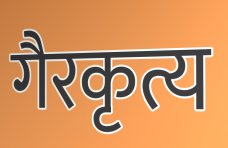
गैरकृत्य